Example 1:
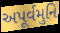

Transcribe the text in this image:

અપૂર્વમુનિ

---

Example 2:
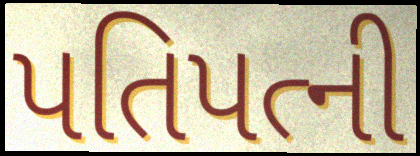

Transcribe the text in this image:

પતિપત્ની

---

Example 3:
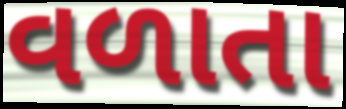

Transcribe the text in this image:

વળાતા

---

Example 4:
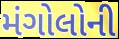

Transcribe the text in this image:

મંગોલોની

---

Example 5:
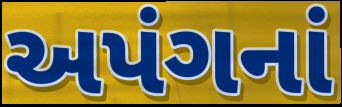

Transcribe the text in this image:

અપંગનાં